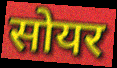
सोयर